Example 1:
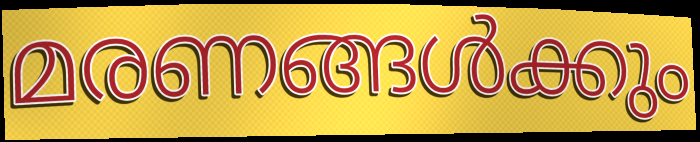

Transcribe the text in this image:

മരണങ്ങൾക്കും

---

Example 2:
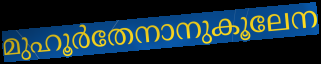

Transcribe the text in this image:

മുഹൂർതേനാനുകൂലേന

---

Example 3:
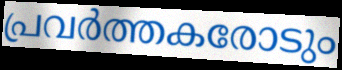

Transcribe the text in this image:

പ്രവർത്തകരോടും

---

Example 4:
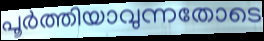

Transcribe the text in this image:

പൂർത്തിയാവുന്നതോടെ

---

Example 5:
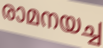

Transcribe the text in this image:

രാമനയച്ച